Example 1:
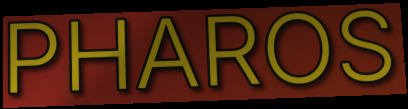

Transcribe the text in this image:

PHAROS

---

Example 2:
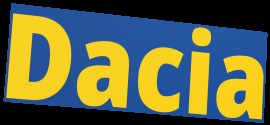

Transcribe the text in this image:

Dacia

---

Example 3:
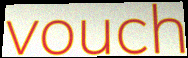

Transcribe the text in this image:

vouch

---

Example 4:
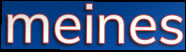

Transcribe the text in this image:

meines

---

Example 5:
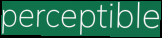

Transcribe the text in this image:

perceptible